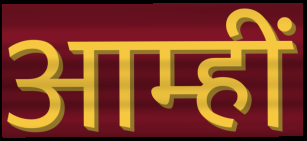
आम्हीं